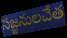
సజ్జనులచేత